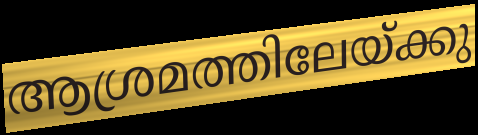
ആശ്രമത്തിലേയ്ക്കു